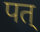
पत्